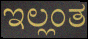
ಇಲ್ಲಂತ